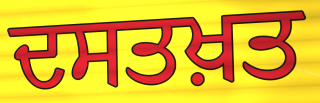
ਦਸਤਖ਼ਤ